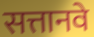
सत्तानवे